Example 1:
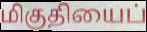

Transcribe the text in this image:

மிகுதியைப்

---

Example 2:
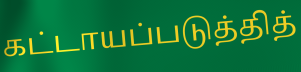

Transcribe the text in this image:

கட்டாயப்படுத்தித்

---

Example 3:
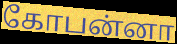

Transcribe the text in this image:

கோபன்னா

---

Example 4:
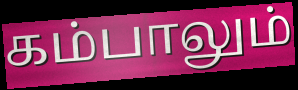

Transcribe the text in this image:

கம்பாலும்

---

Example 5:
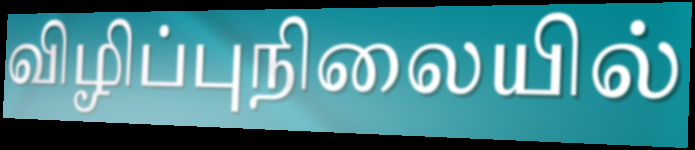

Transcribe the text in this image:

விழிப்புநிலையில்